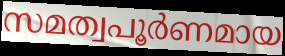
സമത്വപൂർണമായ